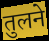
तुलने